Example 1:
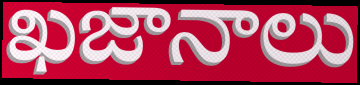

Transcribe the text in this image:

ఖజానాలు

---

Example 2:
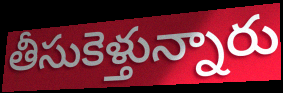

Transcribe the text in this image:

తీసుకెళ్తున్నారు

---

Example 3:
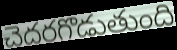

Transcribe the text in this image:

చెదరగొడుతుంది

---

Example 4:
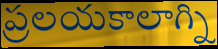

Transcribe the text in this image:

ప్రలయకాలాగ్ని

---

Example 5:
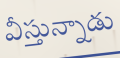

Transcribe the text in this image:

వీస్తున్నాడు